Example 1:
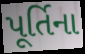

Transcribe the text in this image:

પૂર્તિના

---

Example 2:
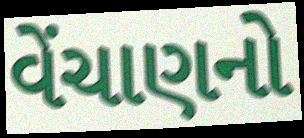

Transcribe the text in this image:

વેંચાણનો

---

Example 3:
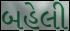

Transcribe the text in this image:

બહેલી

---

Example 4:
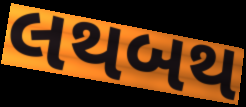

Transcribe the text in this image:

લથબથ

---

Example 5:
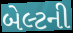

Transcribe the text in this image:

બેલ્ટની